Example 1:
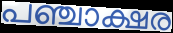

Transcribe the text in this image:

പഞ്ചാക്ഷര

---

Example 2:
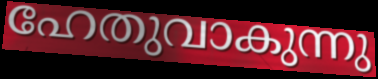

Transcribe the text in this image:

ഹേതുവാകുന്നു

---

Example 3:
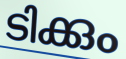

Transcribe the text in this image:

ടിക്കും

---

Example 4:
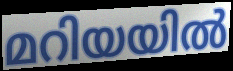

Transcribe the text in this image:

മറിയയിൽ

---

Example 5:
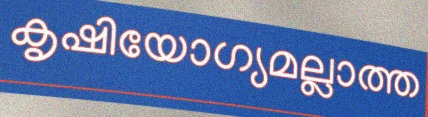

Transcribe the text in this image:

കൃഷിയോഗ്യമല്ലാത്ത